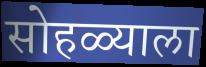
सोहळ्याला